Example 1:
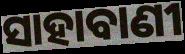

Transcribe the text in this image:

ସାହାବାଣୀ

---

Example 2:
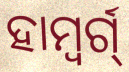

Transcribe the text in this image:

ହାମ୍ବର୍ଗ୍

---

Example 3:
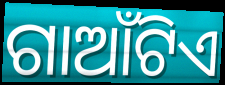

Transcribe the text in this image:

ଗାଆଁଟିଏ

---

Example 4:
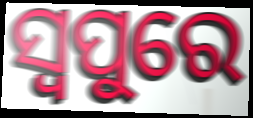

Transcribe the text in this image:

ସ୍ୱପୁରେ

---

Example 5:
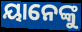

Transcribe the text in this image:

ୟାନେଙ୍କୁ